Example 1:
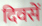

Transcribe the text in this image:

दिवसें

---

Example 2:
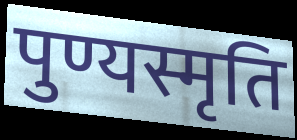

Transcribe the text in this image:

पुण्यस्मृति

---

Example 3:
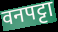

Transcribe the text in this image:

वनपट्टा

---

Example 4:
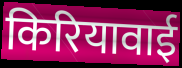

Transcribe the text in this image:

किरियावाई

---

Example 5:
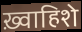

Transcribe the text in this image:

ख़्वाहिशे